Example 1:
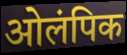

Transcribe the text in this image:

ओलंपिक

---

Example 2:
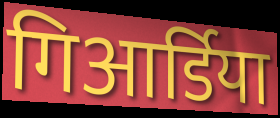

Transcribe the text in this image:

गिआर्डिया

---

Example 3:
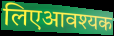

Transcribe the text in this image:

लिएआवश्यक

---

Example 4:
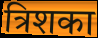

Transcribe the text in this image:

त्रिशका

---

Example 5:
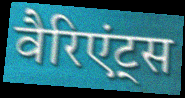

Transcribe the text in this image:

वैरिएंट्स